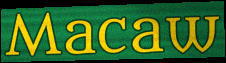
Macaw